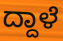
ದ್ದಾಳೆ